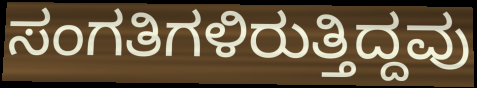
ಸಂಗತಿಗಳಿರುತ್ತಿದ್ದವು